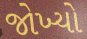
જોખ્યો